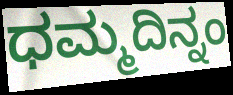
ಧಮ್ಮದಿನ್ನಂ